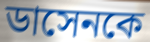
ডাসেনকে